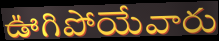
ఊగిపోయేవారు